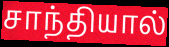
சாந்தியால்